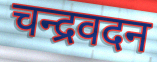
चन्द्रवदन